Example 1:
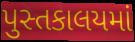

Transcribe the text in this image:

પુસ્તકાલયમાં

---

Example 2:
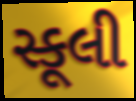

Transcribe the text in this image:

સ્કૂલી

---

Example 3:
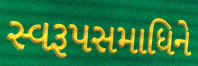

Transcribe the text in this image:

સ્વરૂપસમાધિને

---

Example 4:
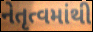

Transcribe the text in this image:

નેતૃત્વમાંથી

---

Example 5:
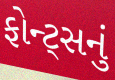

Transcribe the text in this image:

ફોન્ટ્સનું